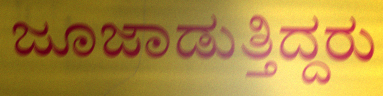
ಜೂಜಾಡುತ್ತಿದ್ದರು